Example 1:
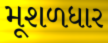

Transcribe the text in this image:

મૂશળધાર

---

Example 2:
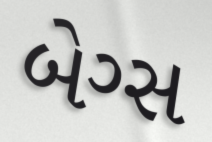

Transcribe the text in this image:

બેગ્સ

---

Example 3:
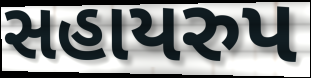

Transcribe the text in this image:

સહાયરુપ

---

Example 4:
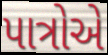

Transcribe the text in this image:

પાત્રોએ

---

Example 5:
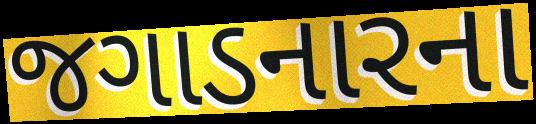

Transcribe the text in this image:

જગાડનારના